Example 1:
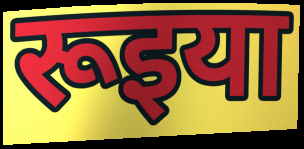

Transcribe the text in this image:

रूइया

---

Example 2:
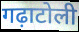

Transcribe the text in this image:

गढ़ाटोली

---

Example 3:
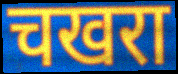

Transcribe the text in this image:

चखरा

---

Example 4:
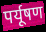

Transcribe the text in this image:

पर्यूषण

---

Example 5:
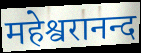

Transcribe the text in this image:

महेश्वरानन्द